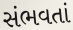
સંભવતાં